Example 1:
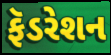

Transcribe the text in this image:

ફૅડરેશન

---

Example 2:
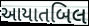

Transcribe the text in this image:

આયાતબિલ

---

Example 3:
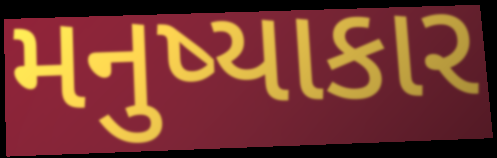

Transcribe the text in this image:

મનુષ્યાકાર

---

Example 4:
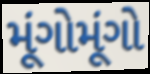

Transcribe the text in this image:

મૂંગોમૂંગો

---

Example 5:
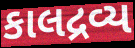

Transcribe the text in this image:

કાલદ્રવ્ય